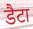
डैटा